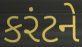
કરંટને